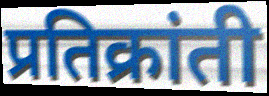
प्रतिक्रांती